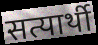
सत्यार्थी